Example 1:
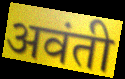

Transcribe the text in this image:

अवंती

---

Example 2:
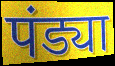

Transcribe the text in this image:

पंड्या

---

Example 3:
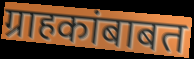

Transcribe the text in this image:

ग्राहकांबाबत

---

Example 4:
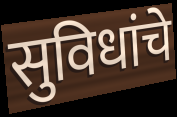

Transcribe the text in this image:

सुविधांचे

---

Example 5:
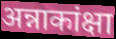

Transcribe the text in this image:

अन्नाकांक्षा